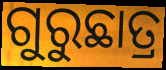
ଗୁରୁଛାତ୍ର